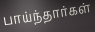
பாய்ந்தார்கள்